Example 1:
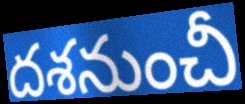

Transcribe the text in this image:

దశనుంచీ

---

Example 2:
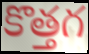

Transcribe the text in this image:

కొత్తగ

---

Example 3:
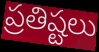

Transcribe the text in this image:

ప్రతిష్టలు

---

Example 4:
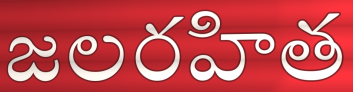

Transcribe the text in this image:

జలరహిత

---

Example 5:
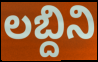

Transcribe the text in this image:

లబ్దిని